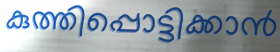
കുത്തിപ്പൊട്ടിക്കാൻ